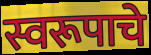
स्वरूपाचे